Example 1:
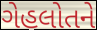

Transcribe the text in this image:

ગેહલોતને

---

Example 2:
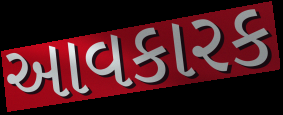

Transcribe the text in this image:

આવકારક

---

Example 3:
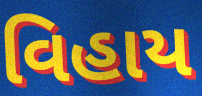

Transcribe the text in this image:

વિહાય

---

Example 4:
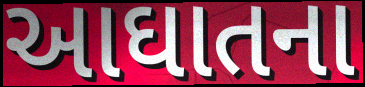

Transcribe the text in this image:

આઘાતના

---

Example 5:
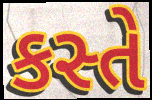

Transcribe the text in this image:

કસ્તે